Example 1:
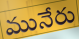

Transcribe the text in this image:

మునేరు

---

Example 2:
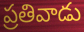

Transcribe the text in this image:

ప్రతివాడు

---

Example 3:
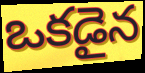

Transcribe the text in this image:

ఒకడైన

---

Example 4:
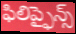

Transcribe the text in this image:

ఫిలిప్ఫైన్స్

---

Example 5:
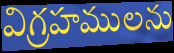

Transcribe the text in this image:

విగ్రహములను